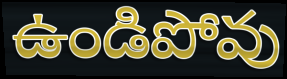
ఉండిపోవు